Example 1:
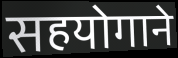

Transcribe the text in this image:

सहयोगाने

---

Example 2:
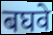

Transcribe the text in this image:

बघवे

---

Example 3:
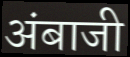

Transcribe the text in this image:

अंबाजी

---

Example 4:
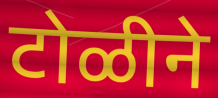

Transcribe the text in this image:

टोळीने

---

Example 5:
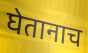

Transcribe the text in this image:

घेतानाच